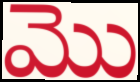
మొ